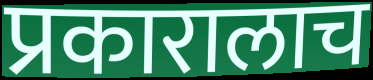
प्रकारालाच